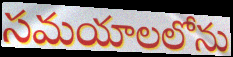
సమయాలలోను